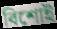
বিশোই